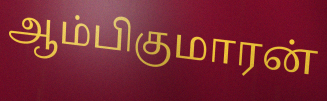
ஆம்பிகுமாரன்